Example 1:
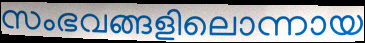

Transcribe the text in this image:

സംഭവങ്ങളിലൊന്നായ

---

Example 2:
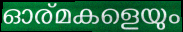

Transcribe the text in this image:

ഓര്മകളെയും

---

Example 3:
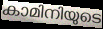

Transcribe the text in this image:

കാമിനിയുടെ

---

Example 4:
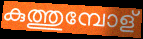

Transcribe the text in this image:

കുത്തുമ്പോള്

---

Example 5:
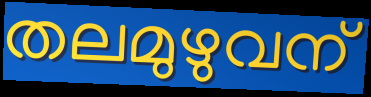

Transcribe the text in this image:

തലമുഴുവന്